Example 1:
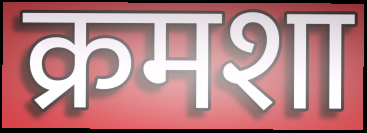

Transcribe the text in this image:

क्रमशा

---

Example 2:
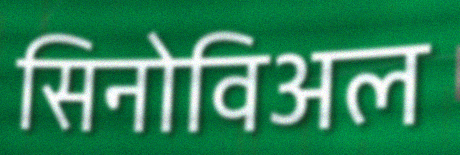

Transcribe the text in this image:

सिनोविअल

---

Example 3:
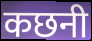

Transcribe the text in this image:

कछनी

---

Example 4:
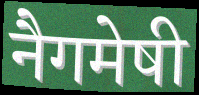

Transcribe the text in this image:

नैगमेषी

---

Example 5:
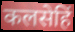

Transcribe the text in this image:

कलसेहिं